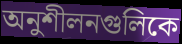
অনুশীলনগুলিকে